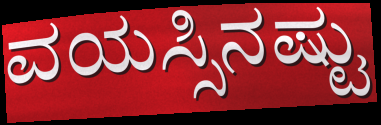
ವಯಸ್ಸಿನಷ್ಟು